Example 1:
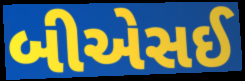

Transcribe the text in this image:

બીએસઈ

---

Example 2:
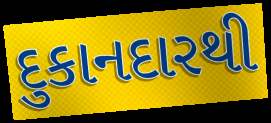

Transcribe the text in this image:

દુકાનદારથી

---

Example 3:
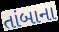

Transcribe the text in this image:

તાંબાના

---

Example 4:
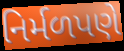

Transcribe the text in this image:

નિર્મળપણે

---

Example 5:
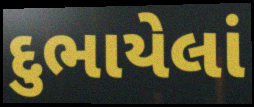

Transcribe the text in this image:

દુભાયેલાં